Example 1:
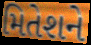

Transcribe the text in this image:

મિતેશને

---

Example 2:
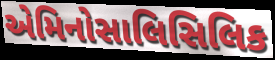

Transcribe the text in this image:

એમિનોસાલિસિલિક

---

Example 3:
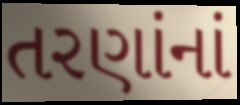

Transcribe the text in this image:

તરણાંનાં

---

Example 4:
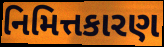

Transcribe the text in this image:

નિમિત્તકારણ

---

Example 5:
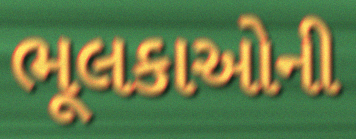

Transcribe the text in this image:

ભૂલકાઓની